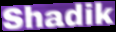
Shadik